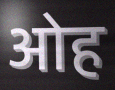
ओह